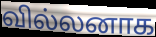
வில்லனாக